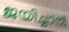
ജയിച്ചാൽ